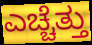
ಎಚ್ಚೆತ್ತು